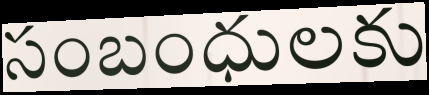
సంబంధులకు